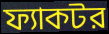
ফ্যাকটর